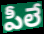
పీలే